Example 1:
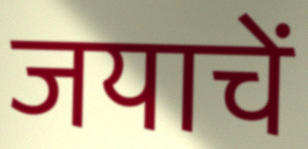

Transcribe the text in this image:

जयाचें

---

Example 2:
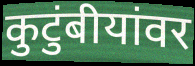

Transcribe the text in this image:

कुटुंबीयांवर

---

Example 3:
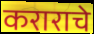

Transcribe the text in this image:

कराराचे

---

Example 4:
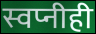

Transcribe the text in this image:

स्वप्नीही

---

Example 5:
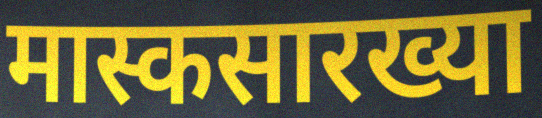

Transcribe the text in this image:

मास्कसारख्या